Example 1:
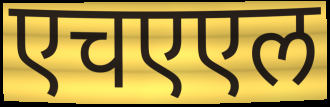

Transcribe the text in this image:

एचएएल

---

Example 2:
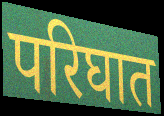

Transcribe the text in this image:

परिघात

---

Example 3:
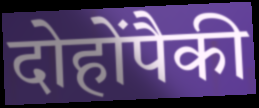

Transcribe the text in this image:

दोहोंपैकी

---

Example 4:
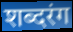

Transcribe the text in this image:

शब्दरंग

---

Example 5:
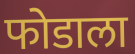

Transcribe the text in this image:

फोडाला